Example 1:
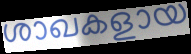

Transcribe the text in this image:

ശാഖകളായ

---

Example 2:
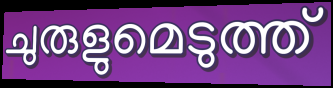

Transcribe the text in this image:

ചുരുളുമെടുത്ത്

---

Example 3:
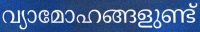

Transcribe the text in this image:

വ്യാമോഹങ്ങളുണ്ട്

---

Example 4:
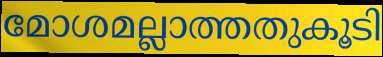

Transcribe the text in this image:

മോശമല്ലാത്തതുകൂടി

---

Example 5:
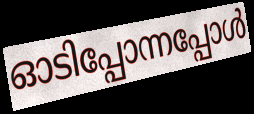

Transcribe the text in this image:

ഓടിപ്പോന്നപ്പോൾ